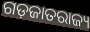
ଗଡ଼ଜାତରାଜ୍ୟ